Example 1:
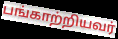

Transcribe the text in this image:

பங்காற்றியவர்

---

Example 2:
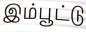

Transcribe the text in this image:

இம்பூட்டு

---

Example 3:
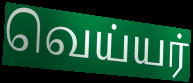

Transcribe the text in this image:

வெய்யர்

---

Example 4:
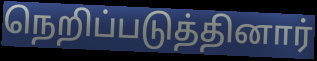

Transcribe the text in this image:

நெறிப்படுத்தினார்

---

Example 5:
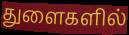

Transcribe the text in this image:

துளைகளில்